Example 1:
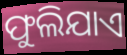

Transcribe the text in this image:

ଫୁଲିଯାଏ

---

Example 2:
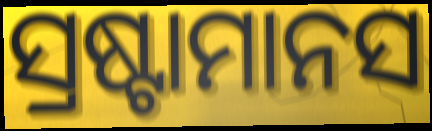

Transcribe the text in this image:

ସ୍ରଷ୍ଟାମାନସ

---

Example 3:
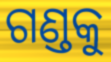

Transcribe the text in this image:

ଗଣ୍ଡକୁ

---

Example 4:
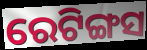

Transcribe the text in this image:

ରେଟିଙ୍ଗସ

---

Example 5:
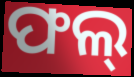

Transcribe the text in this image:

ଫଲ୍